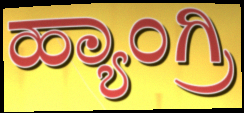
ಹ್ಯಾಂಗ್ರಿ